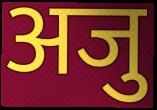
अजु